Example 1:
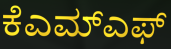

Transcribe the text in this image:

ಕೆಎಮ್ಎಫ್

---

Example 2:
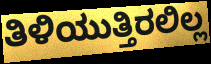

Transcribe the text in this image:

ತಿಳಿಯುತ್ತಿರಲಿಲ್ಲ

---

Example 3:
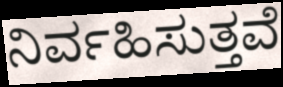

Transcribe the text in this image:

ನಿರ್ವಹಿಸುತ್ತವೆ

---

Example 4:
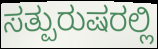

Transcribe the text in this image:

ಸತ್ಪುರುಷರಲ್ಲಿ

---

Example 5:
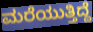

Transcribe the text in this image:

ಮರೆಯುತ್ತಿದ್ದೆ